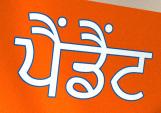
ਪੈਂਡੈਂਟ